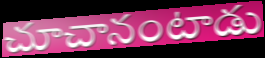
చూచానంటాడు